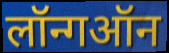
लॉन्गऑन